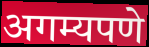
अगम्यपणे